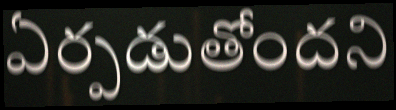
ఏర్పడుతోందని